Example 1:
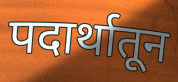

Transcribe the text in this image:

पदार्थातून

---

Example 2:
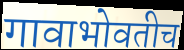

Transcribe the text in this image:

गावाभोवतीच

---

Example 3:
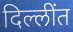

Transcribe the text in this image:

दिल्लींत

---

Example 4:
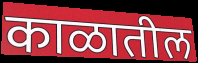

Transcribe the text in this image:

काळातील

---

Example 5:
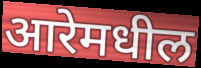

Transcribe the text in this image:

आरेमधील